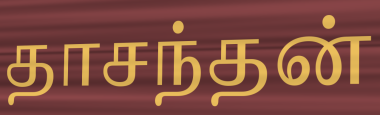
தாசந்தன்